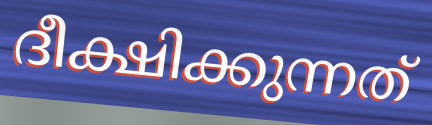
ദീക്ഷിക്കുന്നത്